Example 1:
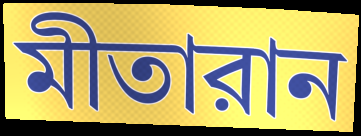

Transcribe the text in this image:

মীতারান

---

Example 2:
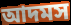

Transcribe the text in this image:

আদমস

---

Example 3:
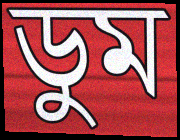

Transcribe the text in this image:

ডুম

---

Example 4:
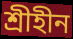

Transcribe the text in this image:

শ্রীহীন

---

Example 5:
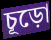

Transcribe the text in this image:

চূড়ো